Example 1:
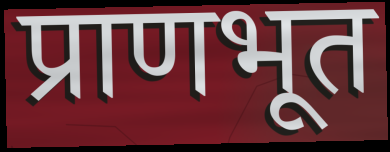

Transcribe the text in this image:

प्राणभूत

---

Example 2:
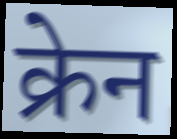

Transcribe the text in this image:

क्रेन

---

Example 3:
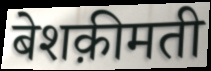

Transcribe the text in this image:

बेशक़ीमती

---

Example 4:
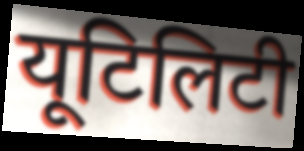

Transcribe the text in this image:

यूटिलिटी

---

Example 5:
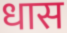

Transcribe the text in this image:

धास